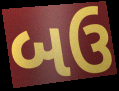
બઉ